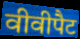
वीवीपैट